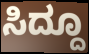
ಸಿದ್ದೂ